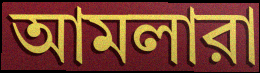
আমলারা